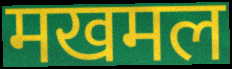
मखमल